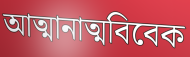
আত্মানাত্মবিবেক